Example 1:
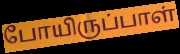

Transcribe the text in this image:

போயிருப்பாள்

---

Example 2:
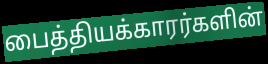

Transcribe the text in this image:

பைத்தியக்காரர்களின்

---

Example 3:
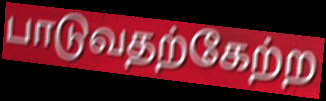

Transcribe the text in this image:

பாடுவதற்கேற்ற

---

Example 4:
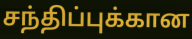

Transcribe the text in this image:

சந்திப்புக்கான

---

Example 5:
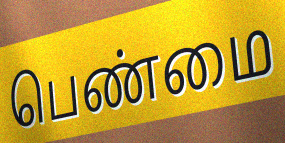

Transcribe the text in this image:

பெண்மை